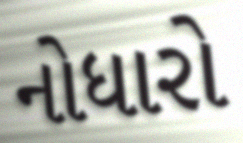
નોધારો